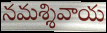
నమశ్శివాయ